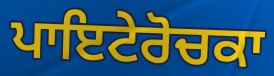
ਪਾਇਟੇਰੋਚਕਾ